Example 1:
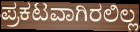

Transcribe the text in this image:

ಪ್ರಕಟವಾಗಿರಲಿಲ್ಲ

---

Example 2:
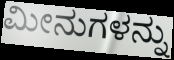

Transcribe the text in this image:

ಮೀನುಗಳನ್ನು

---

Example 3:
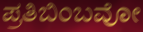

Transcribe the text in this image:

ಪ್ರತಿಬಿಂಬವೋ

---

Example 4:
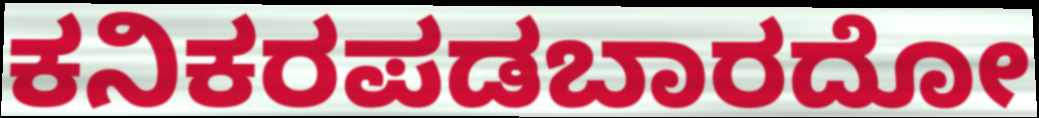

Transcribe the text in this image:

ಕನಿಕರಪಡಬಾರದೋ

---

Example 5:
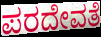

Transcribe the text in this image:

ಪರದೇವತೆ